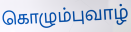
கொழும்புவாழ்